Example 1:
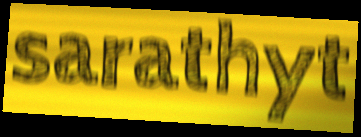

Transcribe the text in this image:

sarathyt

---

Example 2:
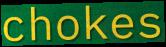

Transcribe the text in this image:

chokes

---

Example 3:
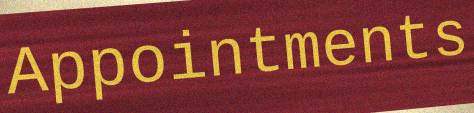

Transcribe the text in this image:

Appointments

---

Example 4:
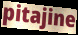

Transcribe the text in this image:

pitajine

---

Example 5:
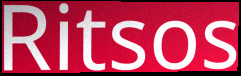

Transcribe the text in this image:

Ritsos